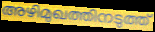
അഴിമുഖത്തിനടുത്ത്